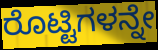
ರೊಟ್ಟಿಗಳನ್ನೇ